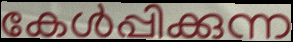
കേൾപ്പിക്കുന്ന